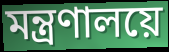
মন্ত্রণালয়ে